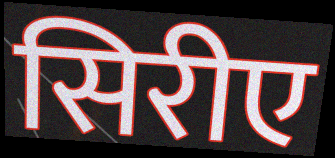
सिरीए